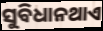
ସୁବିଧାନଥାଏ